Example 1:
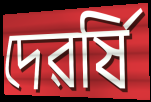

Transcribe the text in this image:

দেৱৰ্ষি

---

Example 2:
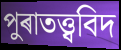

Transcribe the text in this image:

পুৰাতত্ত্ববিদ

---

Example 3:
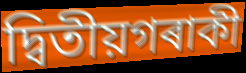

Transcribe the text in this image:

দ্বিতীয়গৰাকী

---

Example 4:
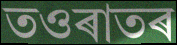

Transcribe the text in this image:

তওৰাতৰ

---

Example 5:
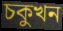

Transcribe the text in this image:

চকুখন